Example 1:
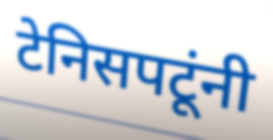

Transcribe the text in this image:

टेनिसपटूंनी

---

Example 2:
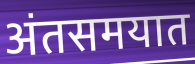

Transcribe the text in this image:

अंतसमयात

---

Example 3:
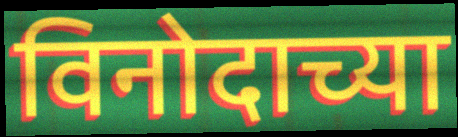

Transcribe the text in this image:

विनोदाच्या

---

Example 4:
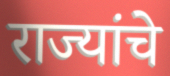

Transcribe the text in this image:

राज्यांचे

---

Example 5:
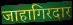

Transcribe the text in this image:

जाहागिरदार